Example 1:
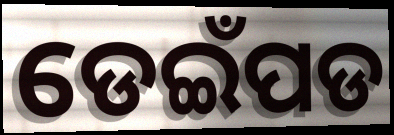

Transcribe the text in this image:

ଡେଇଁପଡ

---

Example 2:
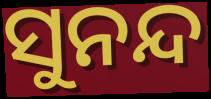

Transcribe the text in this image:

ସୁନନ୍ଦ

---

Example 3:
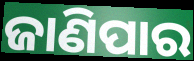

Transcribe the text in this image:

ଜାଣିପାର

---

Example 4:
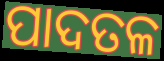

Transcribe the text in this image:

ପାଦତଳ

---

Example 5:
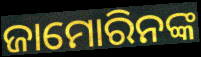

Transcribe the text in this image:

ଜାମୋରିନଙ୍କ